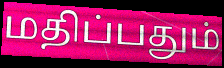
மதிப்பதும்